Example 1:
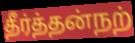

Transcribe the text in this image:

தீர்த்தன்நற்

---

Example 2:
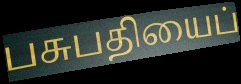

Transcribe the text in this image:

பசுபதியைப்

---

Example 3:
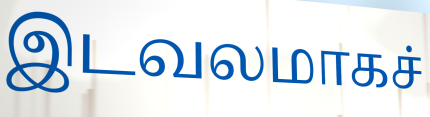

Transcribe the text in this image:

இடவலமாகச்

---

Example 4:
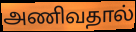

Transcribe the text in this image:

அணிவதால்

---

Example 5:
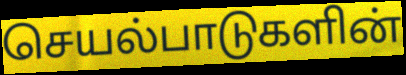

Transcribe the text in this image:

செயல்பாடுகளின்